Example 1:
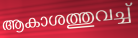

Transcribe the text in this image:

ആകാശത്തുവച്ച്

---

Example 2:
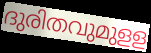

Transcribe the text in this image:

ദുരിതവുമുളള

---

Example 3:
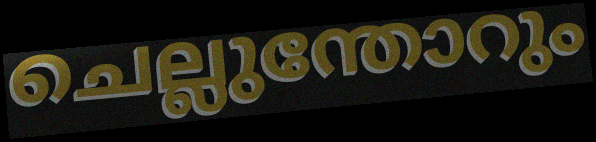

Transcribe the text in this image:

ചെല്ലുന്തോറും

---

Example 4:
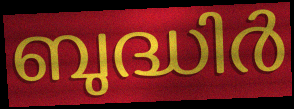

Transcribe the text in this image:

ബുദ്ധിർ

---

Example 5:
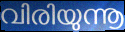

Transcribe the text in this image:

വിരിയുന്നൂ